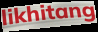
likhitang